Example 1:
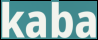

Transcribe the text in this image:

kaba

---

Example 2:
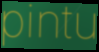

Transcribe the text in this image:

pintu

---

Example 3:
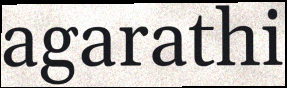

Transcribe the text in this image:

agarathi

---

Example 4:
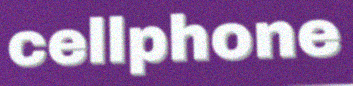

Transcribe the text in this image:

cellphone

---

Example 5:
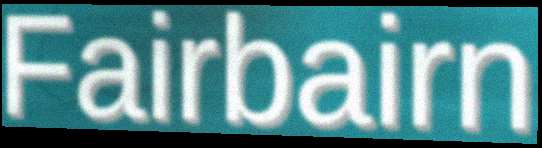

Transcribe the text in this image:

Fairbairn